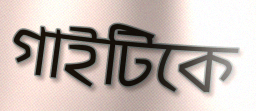
গাইটিকে